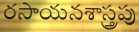
రసాయనశాస్త్రపు